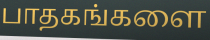
பாதகங்களை